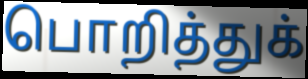
பொறித்துக்